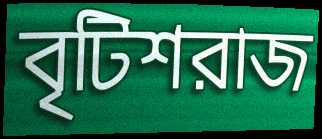
বৃটিশরাজ